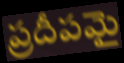
ప్రదీపమై